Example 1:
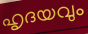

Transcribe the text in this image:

ഹൃദയവും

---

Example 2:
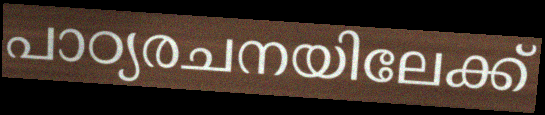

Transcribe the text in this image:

പാഠ്യരചനയിലേക്ക്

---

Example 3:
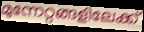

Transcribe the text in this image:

മുന്നേറ്റങ്ങളിലേക്ക്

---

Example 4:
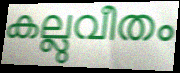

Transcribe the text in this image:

കല്ലുവീതം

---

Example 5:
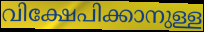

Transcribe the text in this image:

വിക്ഷേപിക്കാനുള്ള